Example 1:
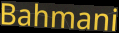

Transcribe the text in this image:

Bahmani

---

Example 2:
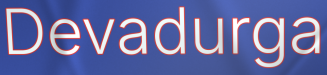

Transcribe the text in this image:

Devadurga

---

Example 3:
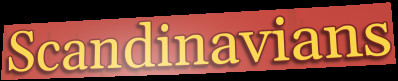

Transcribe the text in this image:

Scandinavians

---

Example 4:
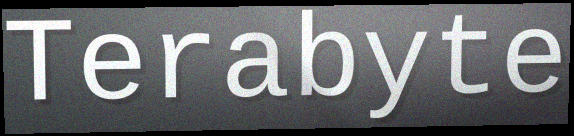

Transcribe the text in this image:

Terabyte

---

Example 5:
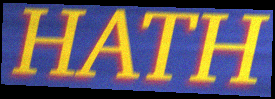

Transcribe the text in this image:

HATH